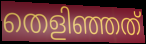
തെളിഞ്ഞത്